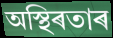
অস্থিৰতাৰ